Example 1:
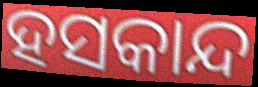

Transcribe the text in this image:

ହସକାନ୍ଦ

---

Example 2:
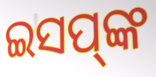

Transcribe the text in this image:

ଇସପ୍‌ଙ୍କ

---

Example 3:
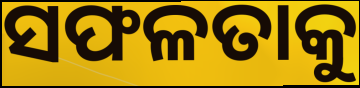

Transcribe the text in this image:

ସଫଳତାକୁ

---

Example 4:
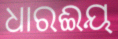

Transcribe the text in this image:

ଧାରଈୟ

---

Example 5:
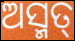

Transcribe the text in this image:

ଅସ୍ମତ୍